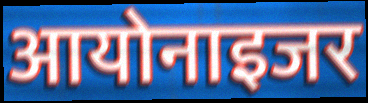
आयोनाइजर